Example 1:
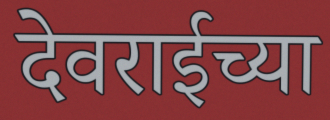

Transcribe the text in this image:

देवराईच्या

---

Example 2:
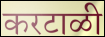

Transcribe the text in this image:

करटाळी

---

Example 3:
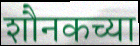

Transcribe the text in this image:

शौनकच्या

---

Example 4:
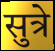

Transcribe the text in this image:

सुत्रे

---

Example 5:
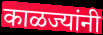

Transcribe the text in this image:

काळज्यांनी